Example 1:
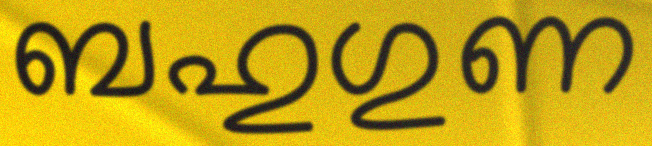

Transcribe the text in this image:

ബഹുഗുണ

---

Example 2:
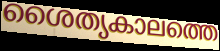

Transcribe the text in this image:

ശൈത്യകാലത്തെ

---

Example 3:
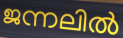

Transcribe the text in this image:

ജന്നലിൽ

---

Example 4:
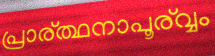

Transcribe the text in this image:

പ്രാര്ത്ഥനാപൂര്വ്വം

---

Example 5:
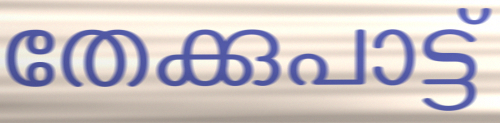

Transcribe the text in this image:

തേക്കുപാട്ട്